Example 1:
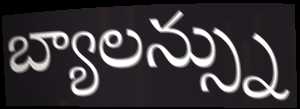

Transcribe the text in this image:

బ్యాలన్స్ను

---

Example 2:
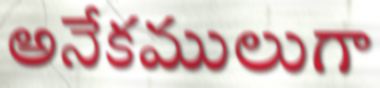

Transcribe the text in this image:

అనేకములుగా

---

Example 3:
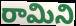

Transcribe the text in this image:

రామిని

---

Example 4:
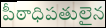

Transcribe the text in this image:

పీఠాధిపతులైన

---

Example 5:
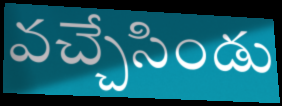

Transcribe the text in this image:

వచ్చేసిండు